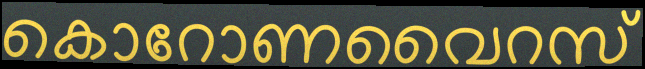
കൊറോണവൈറസ്